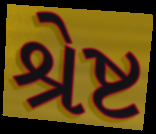
શ્રેષ્ટ